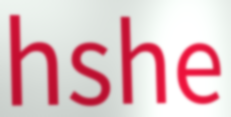
hshe